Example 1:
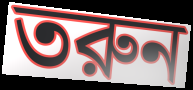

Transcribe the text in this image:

তরুন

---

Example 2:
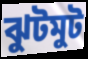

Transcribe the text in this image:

ঝুটমুট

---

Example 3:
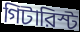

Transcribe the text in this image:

গিটারিস্ট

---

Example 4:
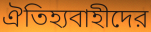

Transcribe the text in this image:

ঐতিহ্যবাহীদের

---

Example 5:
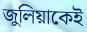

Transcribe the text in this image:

জুলিয়াকেই